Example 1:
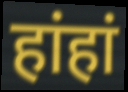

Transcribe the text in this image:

हांहां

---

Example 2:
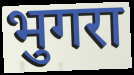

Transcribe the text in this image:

भुगरा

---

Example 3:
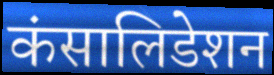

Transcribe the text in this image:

कंसालिडेशन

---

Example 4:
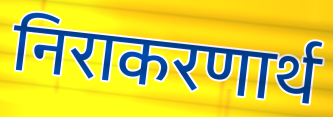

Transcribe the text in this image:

निराकरणार्थ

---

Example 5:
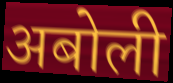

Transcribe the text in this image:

अबोली